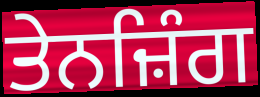
ਤੇਨਜ਼ਿੰਗ